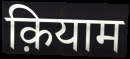
क़ियाम